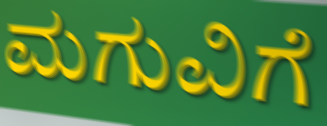
ಮಗುವಿಗೆ